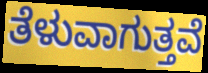
ತೆಳುವಾಗುತ್ತವೆ